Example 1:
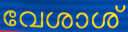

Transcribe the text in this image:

വേശാശ്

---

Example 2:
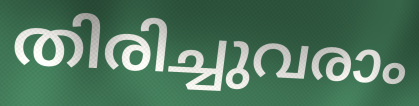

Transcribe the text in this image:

തിരിച്ചുവരാം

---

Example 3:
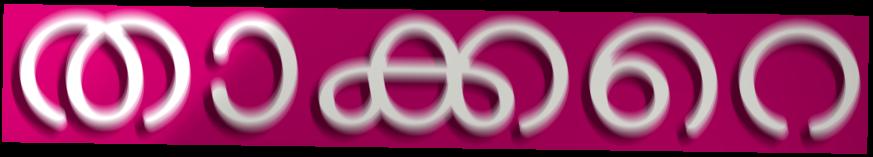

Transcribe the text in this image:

താക്കറെ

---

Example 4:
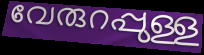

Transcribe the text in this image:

വേരുറപ്പുള്ള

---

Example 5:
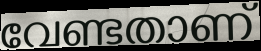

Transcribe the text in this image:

വേണ്ടതാണ്